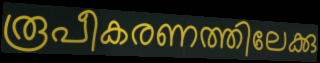
രൂപീകരണത്തിലേക്കു